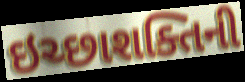
ઇચ્છાશક્તિની